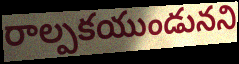
రాల్పకయుండునని